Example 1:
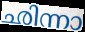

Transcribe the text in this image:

ഛിന്നാ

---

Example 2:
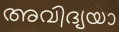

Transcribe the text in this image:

അവിദ്യയാ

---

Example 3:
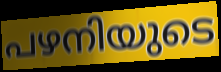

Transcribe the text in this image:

പഴനിയുടെ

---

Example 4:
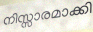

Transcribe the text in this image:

നിസ്സാരമാക്കി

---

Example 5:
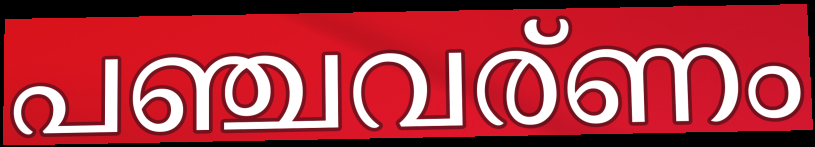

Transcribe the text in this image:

പഞ്ചവര്ണം